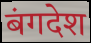
बंगदेश